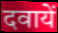
दवायें